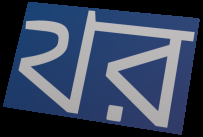
থর